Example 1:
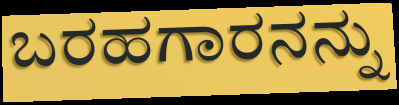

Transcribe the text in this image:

ಬರಹಗಾರನನ್ನು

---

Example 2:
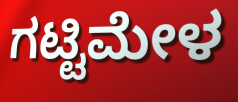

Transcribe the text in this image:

ಗಟ್ಟಿಮೇಳ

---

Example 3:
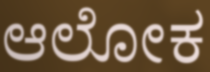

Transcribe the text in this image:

ಆಲೋಕ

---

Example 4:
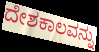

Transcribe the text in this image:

ದೇಶಕಾಲವನ್ನು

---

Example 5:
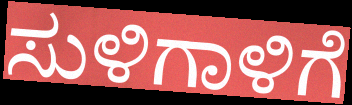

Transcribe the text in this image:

ಸುಳಿಗಾಳಿಗೆ